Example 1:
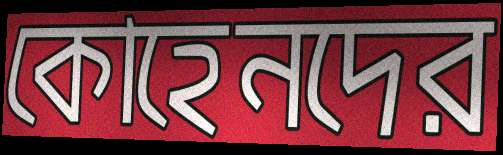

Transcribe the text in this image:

কোহেনদের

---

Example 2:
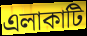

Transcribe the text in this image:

এলাকাটি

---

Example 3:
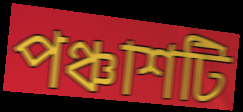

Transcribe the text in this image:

পঞ্চাশটি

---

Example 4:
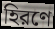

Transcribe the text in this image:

হিরণে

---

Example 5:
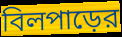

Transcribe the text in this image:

বিলপাড়ের